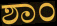
ಶಾಂ